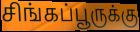
சிங்கப்பூருக்கு